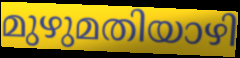
മുഴുമതിയാഴി